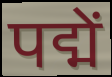
पद्में